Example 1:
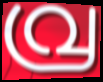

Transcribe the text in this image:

വ്ര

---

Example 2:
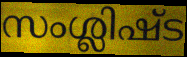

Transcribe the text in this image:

സംശ്ലിഷ്ട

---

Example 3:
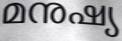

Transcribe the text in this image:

മനുഷ്യ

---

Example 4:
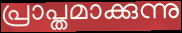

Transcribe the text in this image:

പ്രാപ്തമാക്കുന്നു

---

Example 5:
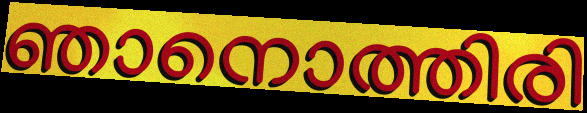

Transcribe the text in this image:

ഞാനൊത്തിരി